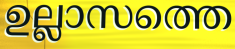
ഉല്ലാസത്തെ